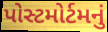
પોસ્ટમોર્ટમનું